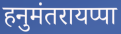
हनुमंतरायप्पा